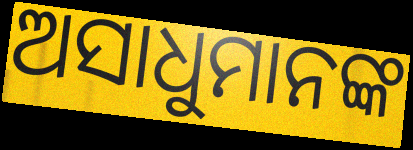
ଅସାଧୁମାନଙ୍କ